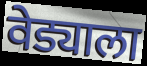
वेड्याला